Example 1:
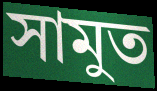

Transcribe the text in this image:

সামুত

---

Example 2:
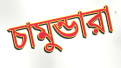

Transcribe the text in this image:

চামুন্ডারা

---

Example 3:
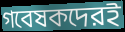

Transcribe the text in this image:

গবেষকদেরই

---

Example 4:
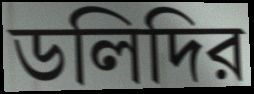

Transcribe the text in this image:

ডলিদির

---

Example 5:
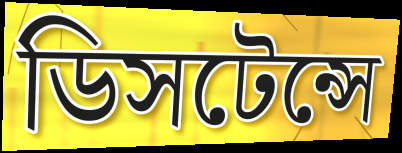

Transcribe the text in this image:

ডিসটেন্সে